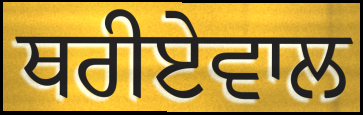
ਥਰੀਏਵਾਲ